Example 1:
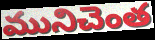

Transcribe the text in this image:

మునిచెంత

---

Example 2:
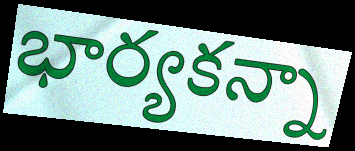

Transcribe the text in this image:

భార్యకన్నా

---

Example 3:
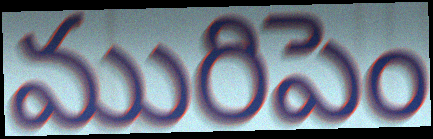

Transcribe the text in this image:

మురిపెం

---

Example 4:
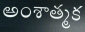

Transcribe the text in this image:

అంశాత్మక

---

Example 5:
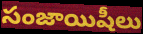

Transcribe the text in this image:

సంజాయిషీలు